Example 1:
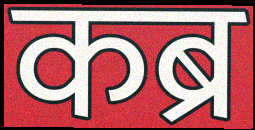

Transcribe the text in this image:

कब्र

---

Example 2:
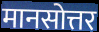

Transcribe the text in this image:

मानसोत्तर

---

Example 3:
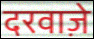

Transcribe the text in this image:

दरवाज़े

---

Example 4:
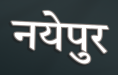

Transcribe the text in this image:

नयेपुर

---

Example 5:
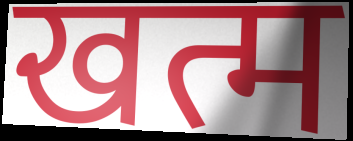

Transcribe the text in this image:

खत्‍म